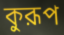
কুরূপ